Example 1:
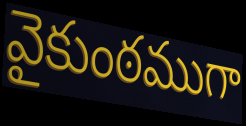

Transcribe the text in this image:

వైకుంఠముగా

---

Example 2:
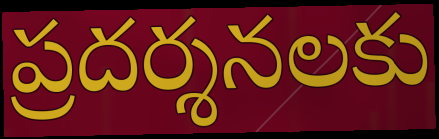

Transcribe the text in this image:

ప్రదర్శనలకు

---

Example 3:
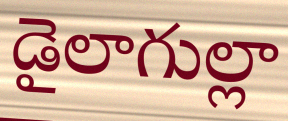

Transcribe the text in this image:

డైలాగుల్లా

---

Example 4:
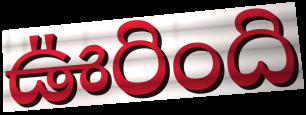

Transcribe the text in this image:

ఊరింది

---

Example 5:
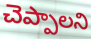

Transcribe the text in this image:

చెప్పాలని